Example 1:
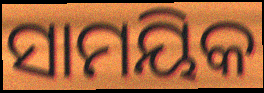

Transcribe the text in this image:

ସାମୟିକ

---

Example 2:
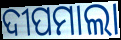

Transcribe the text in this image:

ଦୀପମାଲା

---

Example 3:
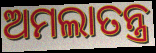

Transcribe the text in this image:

ଅମଲାତନ୍ତ୍ର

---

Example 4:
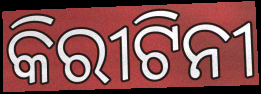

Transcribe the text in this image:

କିରୀଟିନୀ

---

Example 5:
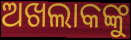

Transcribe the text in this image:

ଅଖଲାକଙ୍କୁ